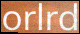
orlrd